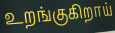
உறங்குகிறாய்